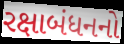
રક્ષાબંધનનો